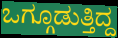
ಒಗ್ಗೂಡುತ್ತಿದ್ದ